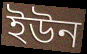
ইউন